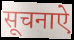
सूचनाऐ